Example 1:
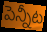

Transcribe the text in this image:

పెన్నీట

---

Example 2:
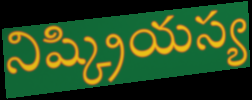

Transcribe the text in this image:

నిష్క్రియస్య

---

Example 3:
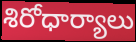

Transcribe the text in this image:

శిరోధార్యాలు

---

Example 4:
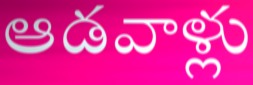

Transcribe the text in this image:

ఆడవాళ్లు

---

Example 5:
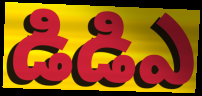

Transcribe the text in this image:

డిడిఎ